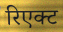
रिएक्ट